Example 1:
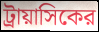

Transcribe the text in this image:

ট্রায়াসিকের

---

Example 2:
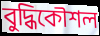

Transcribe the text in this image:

বুদ্ধিকৌশল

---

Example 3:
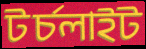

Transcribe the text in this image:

টর্চলাইট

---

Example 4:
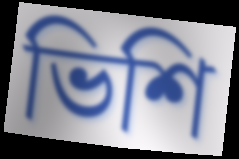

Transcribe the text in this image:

ভিশি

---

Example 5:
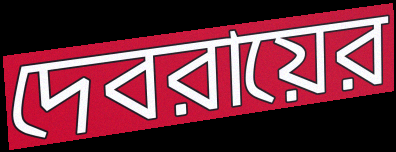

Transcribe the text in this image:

দেবরায়ের